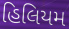
હિલિયમ